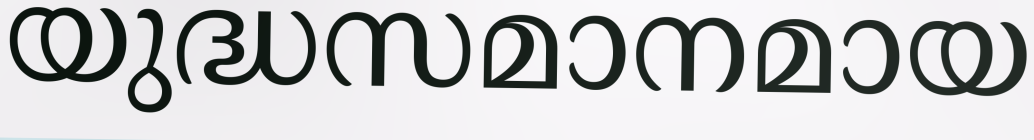
യുദ്ധസമാനമായ